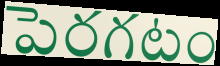
పెరగటం